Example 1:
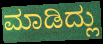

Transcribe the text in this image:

ಮಾಡಿದ್ಲು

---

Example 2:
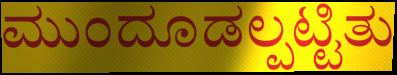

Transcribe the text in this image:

ಮುಂದೂಡಲ್ಪಟ್ಟಿತು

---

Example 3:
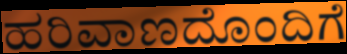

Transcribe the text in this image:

ಹರಿವಾಣದೊಂದಿಗೆ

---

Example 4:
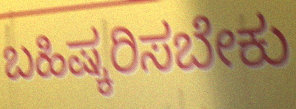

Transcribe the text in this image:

ಬಹಿಷ್ಕರಿಸಬೇಕು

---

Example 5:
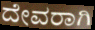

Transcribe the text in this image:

ದೇವರಾಗಿ